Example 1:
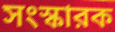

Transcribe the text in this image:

সংস্কারক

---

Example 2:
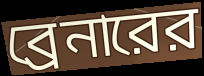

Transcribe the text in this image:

ব্রেনারের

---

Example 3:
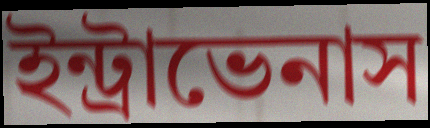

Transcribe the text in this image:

ইন্ট্রাভেনাস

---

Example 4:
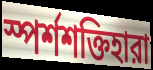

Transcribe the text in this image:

স্পর্শশক্তিহারা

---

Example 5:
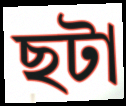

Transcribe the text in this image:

ছটা